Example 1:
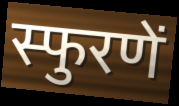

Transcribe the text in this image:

स्फुरणें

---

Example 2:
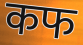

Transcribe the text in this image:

कफ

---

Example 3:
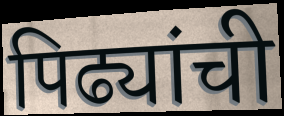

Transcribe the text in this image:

पिढ्यांची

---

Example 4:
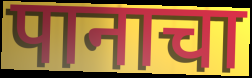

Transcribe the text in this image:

पानाचा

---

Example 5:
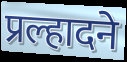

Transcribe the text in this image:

प्रल्हादने